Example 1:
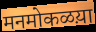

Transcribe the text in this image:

मनमोकळय़ा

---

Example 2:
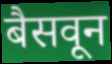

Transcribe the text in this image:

बैसवून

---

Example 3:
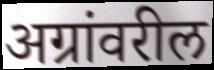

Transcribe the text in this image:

अग्रांवरील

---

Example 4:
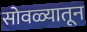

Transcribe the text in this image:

सोवळ्यातून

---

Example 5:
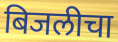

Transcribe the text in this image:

बिजलीचा